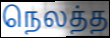
நெலத்த